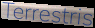
Terrestris